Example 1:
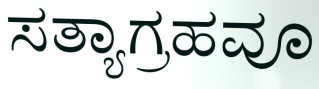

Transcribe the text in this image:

ಸತ್ಯಾಗ್ರಹವೂ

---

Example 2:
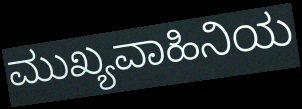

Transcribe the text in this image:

ಮುಖ್ಯವಾಹಿನಿಯ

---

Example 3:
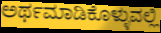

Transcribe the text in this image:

ಅರ್ಥಮಾಡಿಕೊಳ್ಳುವಲ್ಲಿ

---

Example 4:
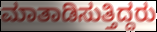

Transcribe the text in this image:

ಮಾತಾಡಿಸುತ್ತಿದ್ದರು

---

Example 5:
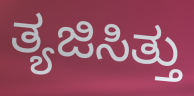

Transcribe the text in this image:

ತ್ಯಜಿಸಿತ್ತು